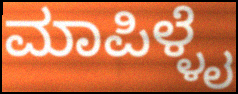
ಮಾಪಿಳ್ಳೈ